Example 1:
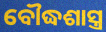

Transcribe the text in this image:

ବୌଦ୍ଧଶାସ୍ତ୍ର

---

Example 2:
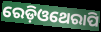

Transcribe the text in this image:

ରେଡ଼ିଓଥେରାପି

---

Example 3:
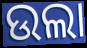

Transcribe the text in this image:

ଉଲା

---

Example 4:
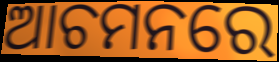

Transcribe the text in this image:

ଆଚମନରେ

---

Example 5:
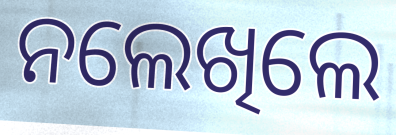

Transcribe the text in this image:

ନଲେଖିଲେ